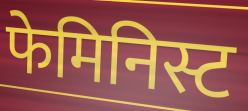
फेमिनिस्ट